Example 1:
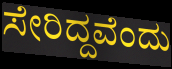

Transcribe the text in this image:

ಸೇರಿದ್ದವೆಂದು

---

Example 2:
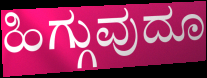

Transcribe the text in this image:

ಹಿಗ್ಗುವುದೂ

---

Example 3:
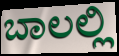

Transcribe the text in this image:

ಬಾಲಲ್ಲಿ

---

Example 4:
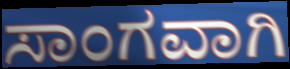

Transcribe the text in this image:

ಸಾಂಗವಾಗಿ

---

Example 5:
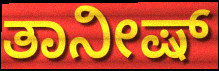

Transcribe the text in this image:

ತಾನೀಷ್